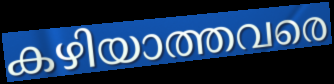
കഴിയാത്തവരെ